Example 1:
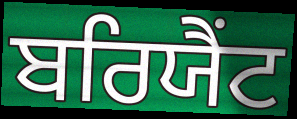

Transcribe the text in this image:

ਬਰਿਯੈਂਟ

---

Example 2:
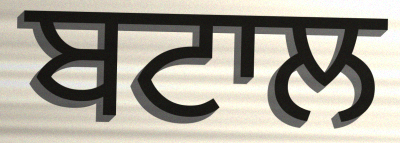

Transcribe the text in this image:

ਬਟਾਲ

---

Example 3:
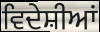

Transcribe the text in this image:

ਵਿਦੇਸ਼ੀਆਂ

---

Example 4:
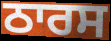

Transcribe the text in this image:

ਠਾਰਸ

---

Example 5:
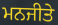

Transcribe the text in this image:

ਮਨਜੀਤੇ